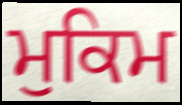
ਮੁਕਿਮ